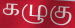
கழுகு